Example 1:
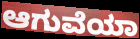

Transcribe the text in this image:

ಆಗುವೆಯಾ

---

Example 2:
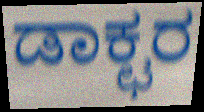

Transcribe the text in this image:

ಡಾಕ್ಟರ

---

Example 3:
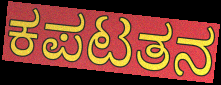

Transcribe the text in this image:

ಕಪಟತನ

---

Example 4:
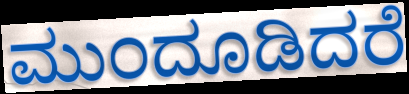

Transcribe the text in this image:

ಮುಂದೂಡಿದರೆ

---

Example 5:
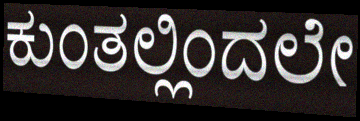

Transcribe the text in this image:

ಕುಂತಲ್ಲಿಂದಲೇ